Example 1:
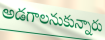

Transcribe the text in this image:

అడగాలనుకున్నారు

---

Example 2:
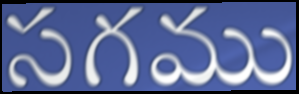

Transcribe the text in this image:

సగము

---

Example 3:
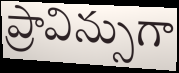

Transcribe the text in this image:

ప్రావిన్సుగా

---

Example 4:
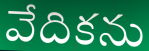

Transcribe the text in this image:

వేదికను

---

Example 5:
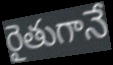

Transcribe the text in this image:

రైతుగానే